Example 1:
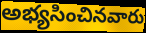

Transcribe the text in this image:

అభ్యసించినవారు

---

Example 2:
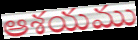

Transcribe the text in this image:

ఆశయము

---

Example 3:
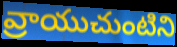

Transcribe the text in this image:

వ్రాయుచుంటిని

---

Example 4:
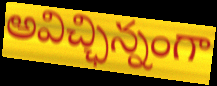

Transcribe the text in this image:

అవిచ్ఛిన్నంగా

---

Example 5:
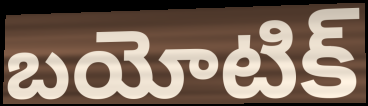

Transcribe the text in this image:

బయోటిక్